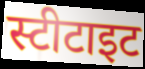
स्टीटाइट